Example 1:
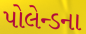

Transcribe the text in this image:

પોલેન્ડના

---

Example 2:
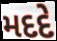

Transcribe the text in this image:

મદદે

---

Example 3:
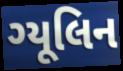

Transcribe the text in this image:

ગ્યૂલિન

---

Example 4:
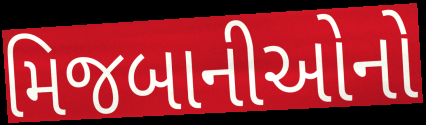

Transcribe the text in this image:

મિજબાનીઓનો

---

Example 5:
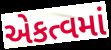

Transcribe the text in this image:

એકત્વમાં